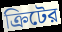
ক্রিটের